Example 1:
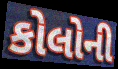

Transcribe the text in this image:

કોલોની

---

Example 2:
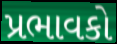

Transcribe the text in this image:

પ્રભાવકો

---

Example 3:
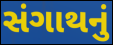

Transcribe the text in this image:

સંગાથનું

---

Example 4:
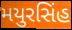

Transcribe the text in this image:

મયુરસિંહ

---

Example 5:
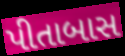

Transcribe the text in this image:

પીતાબાસ